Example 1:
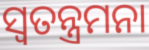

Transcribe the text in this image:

ସ୍ୱତନ୍ତ୍ରମନା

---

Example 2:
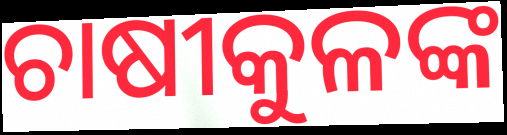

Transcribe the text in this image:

ଚାଷୀକୁଳଙ୍କ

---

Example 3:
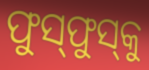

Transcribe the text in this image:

ଫୁସ୍‌ଫୁସ୍‌କୁ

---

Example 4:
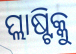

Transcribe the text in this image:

ପ୍ଲାଷ୍ଟିକ୍କୁ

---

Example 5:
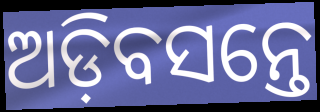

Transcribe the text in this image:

ଅଡ଼ିବସନ୍ତେ